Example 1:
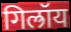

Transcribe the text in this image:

गिल्रॉय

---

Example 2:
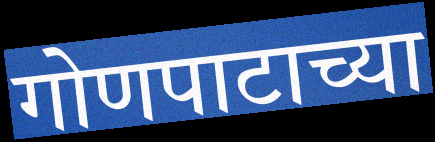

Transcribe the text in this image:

गोणपाटाच्या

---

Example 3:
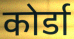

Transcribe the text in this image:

कोर्डा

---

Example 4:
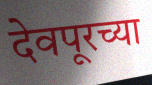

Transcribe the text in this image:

देवपूरच्या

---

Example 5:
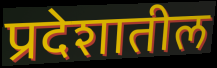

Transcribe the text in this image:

प्रदेशातील